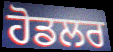
ਹੋਡਲਰ